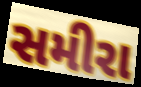
સમીરા